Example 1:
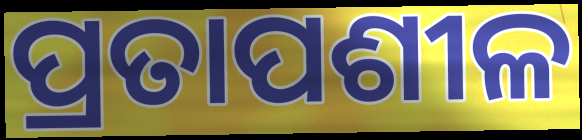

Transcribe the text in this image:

ପ୍ରତାପଶୀଳ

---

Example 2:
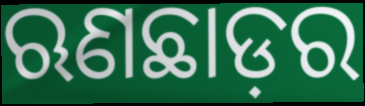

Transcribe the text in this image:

ଋଣଛାଡ଼ର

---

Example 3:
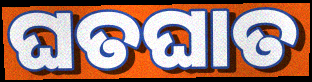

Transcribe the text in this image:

ଘତଘାତ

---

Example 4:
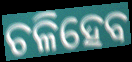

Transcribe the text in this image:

ଚଳିହେବ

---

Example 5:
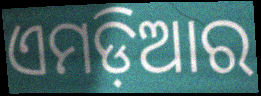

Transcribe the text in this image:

ଏମଡ଼ିଆର